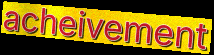
acheivement